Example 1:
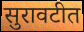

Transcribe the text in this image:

सुरावटीत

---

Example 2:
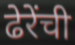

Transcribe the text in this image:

ढेरेंची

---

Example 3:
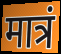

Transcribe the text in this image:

मात्रं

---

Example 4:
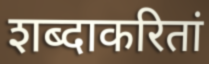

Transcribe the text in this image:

शब्दाकरितां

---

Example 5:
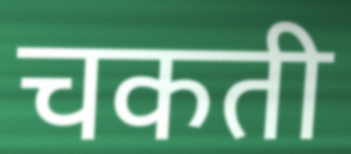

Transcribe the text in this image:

चकती